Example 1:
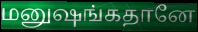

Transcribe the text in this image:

மனுஷங்கதானே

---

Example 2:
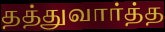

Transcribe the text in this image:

தத்துவார்த்த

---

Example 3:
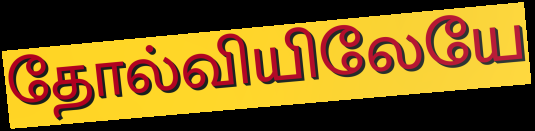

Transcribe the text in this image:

தோல்வியிலேயே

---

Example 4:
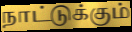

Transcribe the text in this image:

நாட்டுக்கும்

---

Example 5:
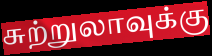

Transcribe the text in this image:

சுற்றுலாவுக்கு